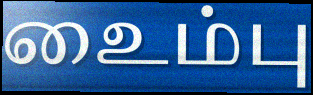
உைம்பு